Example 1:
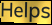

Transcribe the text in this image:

Helps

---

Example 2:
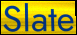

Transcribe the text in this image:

Slate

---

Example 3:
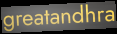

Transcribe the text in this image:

greatandhra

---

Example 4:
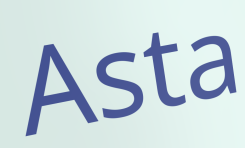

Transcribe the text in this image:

Asta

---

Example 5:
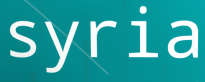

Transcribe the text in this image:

syria